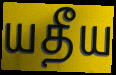
யதீய